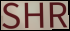
SHR